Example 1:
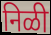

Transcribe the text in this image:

निळी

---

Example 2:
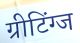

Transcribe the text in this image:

ग्रीटिंग्ज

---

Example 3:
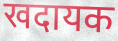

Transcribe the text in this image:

खदायक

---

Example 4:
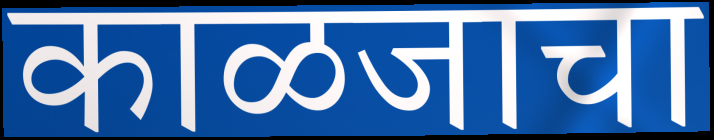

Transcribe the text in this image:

काळजाचा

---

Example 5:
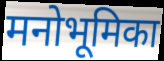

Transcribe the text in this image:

मनोभूमिका